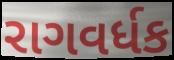
રાગવર્ધક